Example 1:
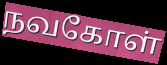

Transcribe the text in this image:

நவகோள்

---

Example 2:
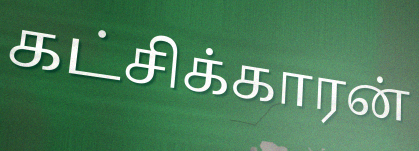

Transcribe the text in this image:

கட்சிக்காரன்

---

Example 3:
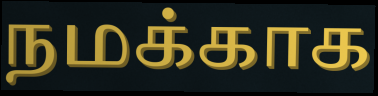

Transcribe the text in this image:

நமக்காக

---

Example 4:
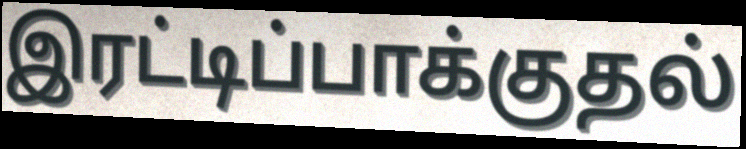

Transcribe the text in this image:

இரட்டிப்பாக்குதல்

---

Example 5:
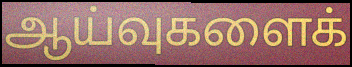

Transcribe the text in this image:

ஆய்வுகளைக்